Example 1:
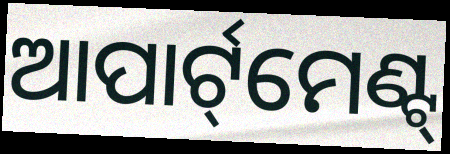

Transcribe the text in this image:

ଆପାର୍ଟ୍‌ମେଣ୍ଟ୍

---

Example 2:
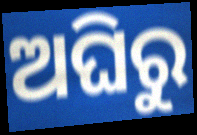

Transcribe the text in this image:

ଅଘିରୁ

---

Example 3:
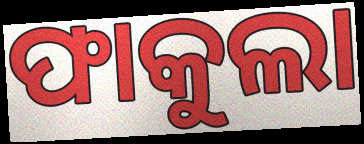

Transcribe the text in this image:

ଫାକୁଲା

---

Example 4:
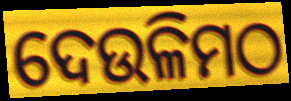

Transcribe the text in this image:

ଦେଉଳିମଠ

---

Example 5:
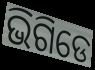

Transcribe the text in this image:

ଭିଗିଡେ